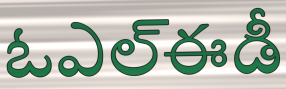
ఓఎల్ఈడీ